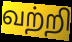
வற்றி